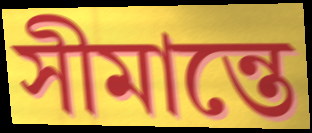
সীমান্তে